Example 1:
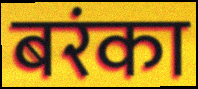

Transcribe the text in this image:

बरंका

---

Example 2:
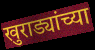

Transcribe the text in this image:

खुराड्यांच्या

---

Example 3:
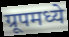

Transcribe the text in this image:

ग्रूपमध्ये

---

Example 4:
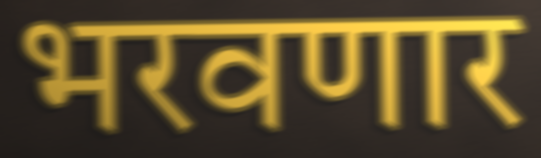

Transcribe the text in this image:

भरवणार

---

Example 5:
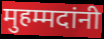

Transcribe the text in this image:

मुहम्मदांनी